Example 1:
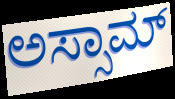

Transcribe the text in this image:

ಅಸ್ಸಾಮ್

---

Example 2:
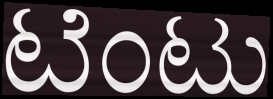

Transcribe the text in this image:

ಟೆಂಟು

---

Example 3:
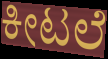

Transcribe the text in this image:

ಕೀಟಲೆ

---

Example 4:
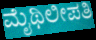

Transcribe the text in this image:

ಮೈಥಿಲೀಪತಿ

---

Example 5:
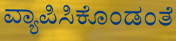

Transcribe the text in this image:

ವ್ಯಾಪಿಸಿಕೊಂಡಂತೆ